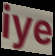
iye